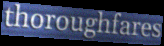
thoroughfares